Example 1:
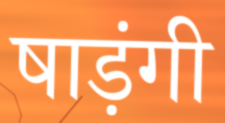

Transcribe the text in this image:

षाड़ंगी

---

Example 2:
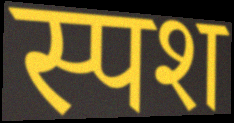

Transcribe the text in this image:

स्पश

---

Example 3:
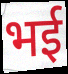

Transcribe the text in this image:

भई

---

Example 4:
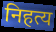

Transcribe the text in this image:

निहत्य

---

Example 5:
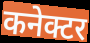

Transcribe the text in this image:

कनेक्टर